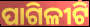
ପାଗିଳୀଟି